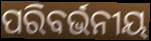
ପରିବର୍ଭନୀୟ